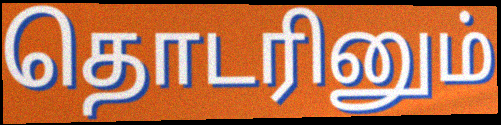
தொடரினும்